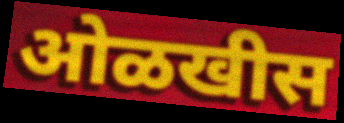
ओळखीस